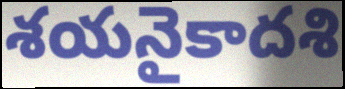
శయనైకాదశి